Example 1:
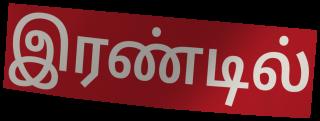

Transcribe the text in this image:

இரண்டில்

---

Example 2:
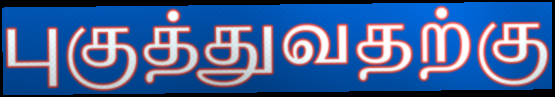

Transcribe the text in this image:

புகுத்துவதற்கு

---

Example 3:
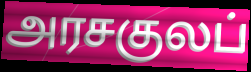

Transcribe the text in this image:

அரசகுலப்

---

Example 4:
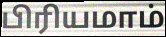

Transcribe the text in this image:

பிரியமாம்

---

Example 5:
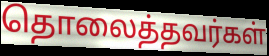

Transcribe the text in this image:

தொலைத்தவர்கள்